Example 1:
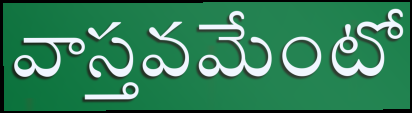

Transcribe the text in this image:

వాస్తవమేంటో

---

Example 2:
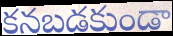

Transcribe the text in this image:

కనబడకుండా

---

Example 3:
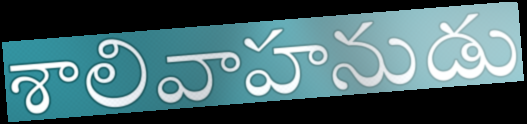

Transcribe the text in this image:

శాలివాహనుడు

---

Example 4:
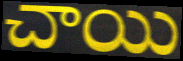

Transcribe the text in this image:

చాయి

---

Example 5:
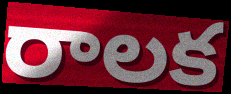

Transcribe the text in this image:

రాలక